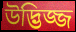
উদ্ভিজ্জ